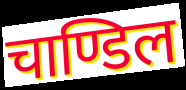
चाण्डिल